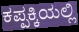
ಕಪ್ಪಕ್ಕಿಯಲ್ಲಿ